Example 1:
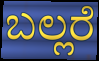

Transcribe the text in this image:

ಬಲ್ಲರೆ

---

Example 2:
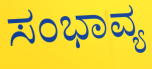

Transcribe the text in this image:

ಸಂಭಾವ್ಯ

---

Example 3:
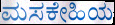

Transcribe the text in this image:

ಮಸಕೇಹಿಯ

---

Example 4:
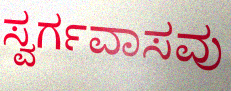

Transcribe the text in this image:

ಸ್ವರ್ಗವಾಸವು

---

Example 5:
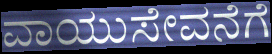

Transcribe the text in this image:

ವಾಯುಸೇವನೆಗೆ